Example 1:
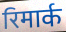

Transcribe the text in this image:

रिमार्क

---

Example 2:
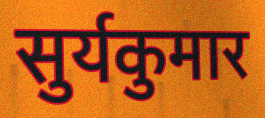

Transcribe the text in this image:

सुर्यकुमार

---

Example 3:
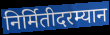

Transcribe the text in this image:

निर्मितीदरम्यान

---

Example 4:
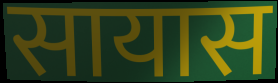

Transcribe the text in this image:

सायास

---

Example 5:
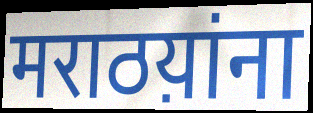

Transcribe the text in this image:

मराठय़ांना